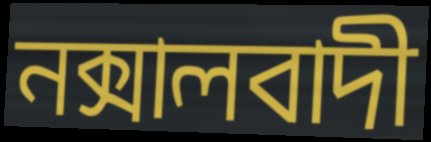
নক্সালবাদী